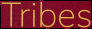
Tribes